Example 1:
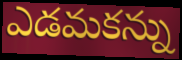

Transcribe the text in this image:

ఎడమకన్ను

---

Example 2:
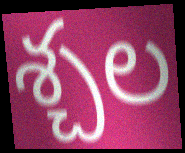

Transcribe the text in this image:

శ్చల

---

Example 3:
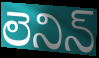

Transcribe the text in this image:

లెనిన్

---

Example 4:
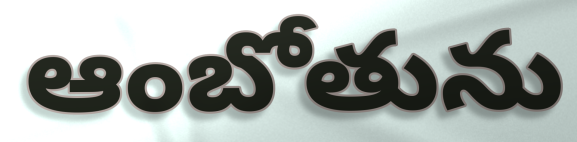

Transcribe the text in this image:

ఆంబోతును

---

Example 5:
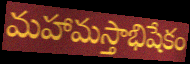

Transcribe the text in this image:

మహామస్తాభిషేకం